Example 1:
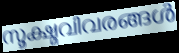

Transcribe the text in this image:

സൂക്ഷ്മവിവരങ്ങൾ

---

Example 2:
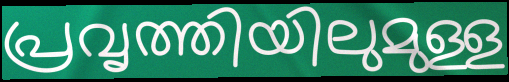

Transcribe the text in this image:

പ്രവൃത്തിയിലുമുള്ള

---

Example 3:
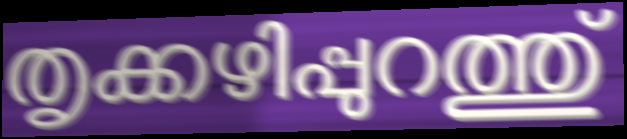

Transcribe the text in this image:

തൃക്കഴിപ്പുറത്തു്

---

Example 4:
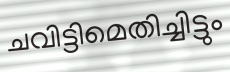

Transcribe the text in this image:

ചവിട്ടിമെതിച്ചിട്ടും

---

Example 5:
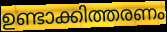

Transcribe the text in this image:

ഉണ്ടാക്കിത്തരണം